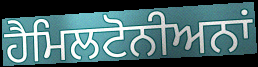
ਹੈਮਿਲਟੋਨੀਅਨਾਂ